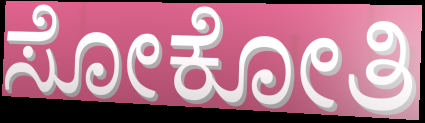
ಸೋಕೋತಿ